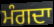
ਮੰਗਦਾ